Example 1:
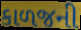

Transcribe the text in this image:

કાળજની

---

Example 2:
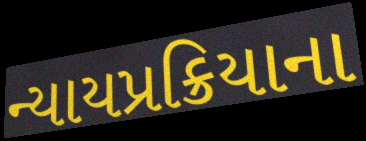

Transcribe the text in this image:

ન્યાયપ્રક્રિયાના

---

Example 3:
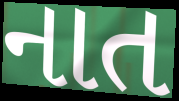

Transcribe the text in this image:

નાત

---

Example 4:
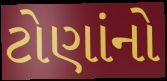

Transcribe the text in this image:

ટોણાંનો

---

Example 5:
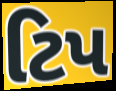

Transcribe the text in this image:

ટિપ